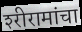
श्रीरामांचा